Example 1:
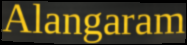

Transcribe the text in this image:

Alangaram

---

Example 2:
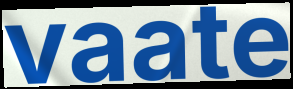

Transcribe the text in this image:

vaate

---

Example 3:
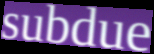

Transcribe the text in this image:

subdue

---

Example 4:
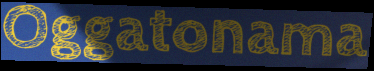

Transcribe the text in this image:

Oggatonama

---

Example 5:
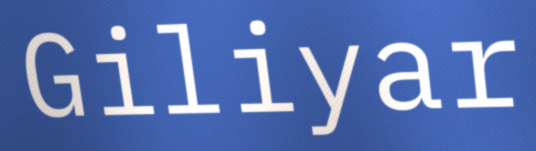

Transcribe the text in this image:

Giliyar